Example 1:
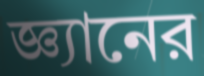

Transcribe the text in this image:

জ্ঞ্যানের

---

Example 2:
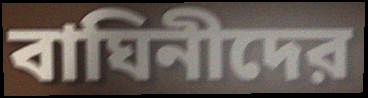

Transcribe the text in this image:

বাঘিনীদের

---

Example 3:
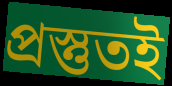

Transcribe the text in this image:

প্রস্তুতই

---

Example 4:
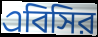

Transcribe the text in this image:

এবিসির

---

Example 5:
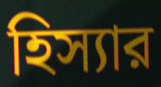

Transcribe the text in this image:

হিস্যার